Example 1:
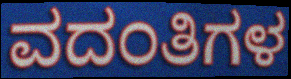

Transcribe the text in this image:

ವದಂತಿಗಳ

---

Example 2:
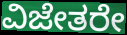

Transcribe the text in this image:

ವಿಜೇತರೇ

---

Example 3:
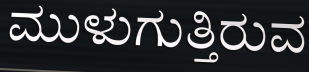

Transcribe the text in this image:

ಮುಳುಗುತ್ತಿರುವ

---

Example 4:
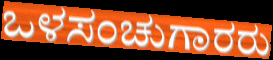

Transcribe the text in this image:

ಒಳಸಂಚುಗಾರರು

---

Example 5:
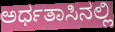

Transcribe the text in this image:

ಅರ್ಧತಾಸಿನಲ್ಲಿ